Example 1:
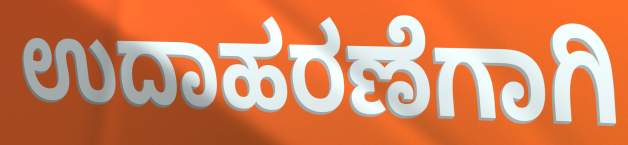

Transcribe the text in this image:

ಉದಾಹರಣೆಗಾಗಿ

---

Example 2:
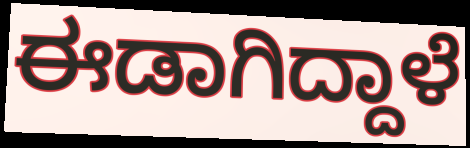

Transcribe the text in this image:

ಈಡಾಗಿದ್ದಾಳೆ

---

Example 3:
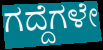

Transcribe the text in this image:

ಗದ್ದೆಗಳೇ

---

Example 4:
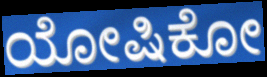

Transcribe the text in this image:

ಯೋಷಿಕೋ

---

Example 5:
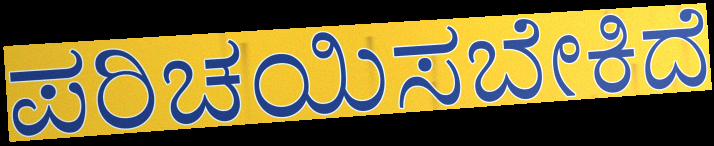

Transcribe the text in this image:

ಪರಿಚಯಿಸಬೇಕಿದೆ